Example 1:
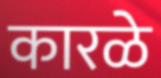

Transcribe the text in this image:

कारळे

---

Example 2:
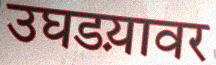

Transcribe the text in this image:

उघडय़ावर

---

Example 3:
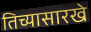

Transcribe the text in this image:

तिच्यासारखे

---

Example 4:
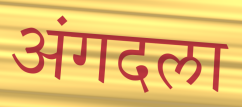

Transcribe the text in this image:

अंगदला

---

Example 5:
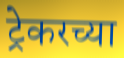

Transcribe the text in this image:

ट्रेकरच्या